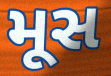
મૂસ